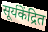
सूर्यकेंद्रित